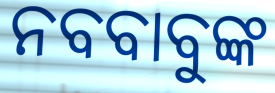
ନବବାବୁଙ୍କ